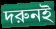
দরুনই